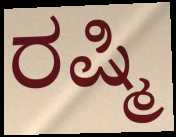
ರಷ್ಮಿ